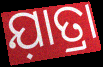
ଯ଼ାତ୍ରା